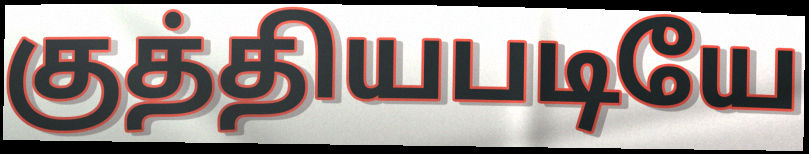
குத்தியபடியே